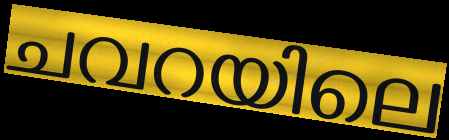
ചവറയിലെ